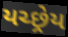
યચ્છ્રેય